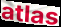
atlas